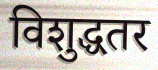
विशुद्धतर